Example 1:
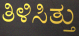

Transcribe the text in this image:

ತಿಳಿಸಿತ್ತು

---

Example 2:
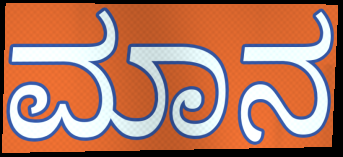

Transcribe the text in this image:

ಮಾನ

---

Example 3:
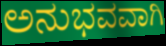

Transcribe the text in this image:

ಅನುಭವವಾಗಿ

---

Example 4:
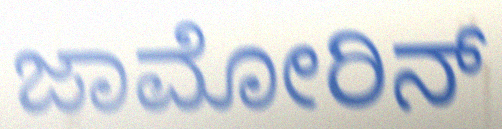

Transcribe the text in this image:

ಜಾಮೋರಿನ್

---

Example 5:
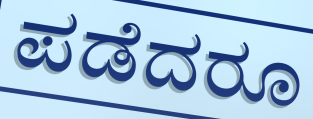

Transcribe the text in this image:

ಪಡೆದರೂ